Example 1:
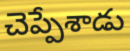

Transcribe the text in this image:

చెప్పేశాడు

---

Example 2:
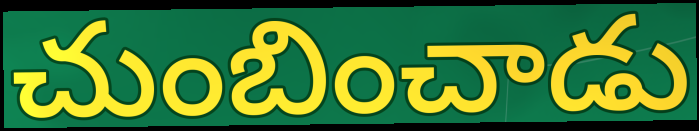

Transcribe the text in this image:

చుంబించాడు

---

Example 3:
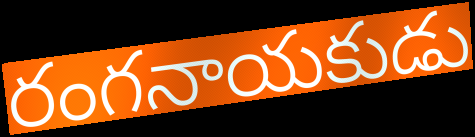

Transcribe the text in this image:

రంగనాయకుడు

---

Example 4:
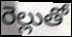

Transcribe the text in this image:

రెల్లుతో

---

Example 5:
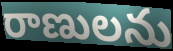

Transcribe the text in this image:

రాణులను